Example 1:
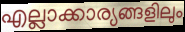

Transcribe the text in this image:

എല്ലാക്കാര്യങ്ങളിലും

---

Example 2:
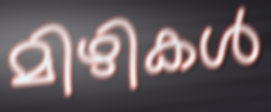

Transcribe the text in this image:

മിഴികൾ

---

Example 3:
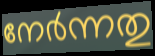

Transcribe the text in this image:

നേർന്നതു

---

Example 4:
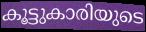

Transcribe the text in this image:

കൂട്ടുകാരിയുടെ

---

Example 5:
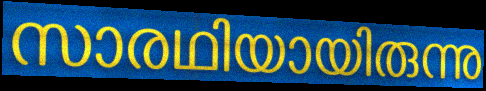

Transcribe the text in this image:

സാരഥിയായിരുന്നു